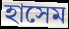
হাসেম